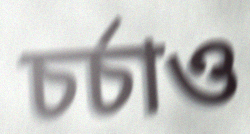
চৰ্চাও